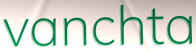
vanchta